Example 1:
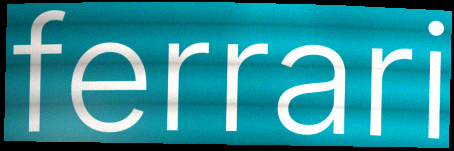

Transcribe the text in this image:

ferrari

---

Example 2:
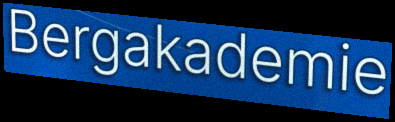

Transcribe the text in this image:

Bergakademie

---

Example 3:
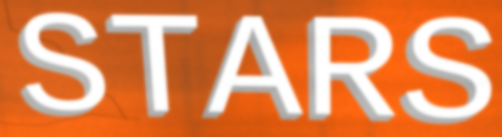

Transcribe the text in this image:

STARS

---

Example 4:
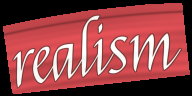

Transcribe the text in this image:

realism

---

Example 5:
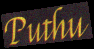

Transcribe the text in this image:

Puthu